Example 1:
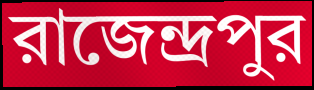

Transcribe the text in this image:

রাজেন্দ্রপুর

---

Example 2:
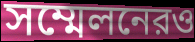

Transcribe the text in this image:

সম্মেলনেরও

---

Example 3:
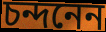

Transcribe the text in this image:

চন্দনেন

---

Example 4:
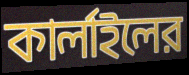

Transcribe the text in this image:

কার্লাইলের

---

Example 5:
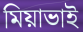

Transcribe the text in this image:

মিয়াভাই